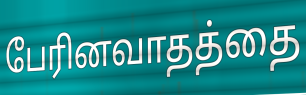
பேரினவாதத்தை